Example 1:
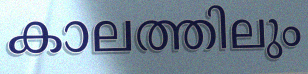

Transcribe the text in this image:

കാലത്തിലും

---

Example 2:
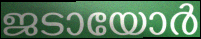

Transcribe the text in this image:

ജടായോർ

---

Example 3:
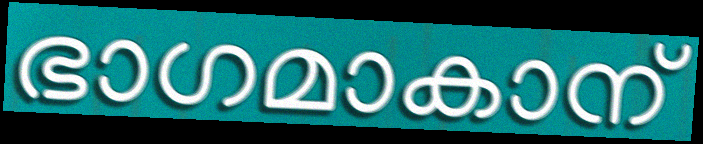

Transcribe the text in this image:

ഭാഗമാകാന്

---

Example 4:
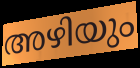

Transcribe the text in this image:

അഴിയും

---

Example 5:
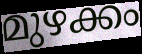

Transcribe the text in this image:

മുഴക്കം